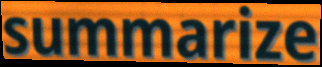
summarize